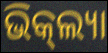
ଭିକ୍‌ଲ୍ୟା